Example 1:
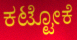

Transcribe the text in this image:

ಕಟ್ಟೋಕೆ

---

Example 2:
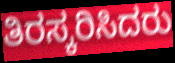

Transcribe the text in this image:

ತಿರಸ್ಕರಿಸಿದರು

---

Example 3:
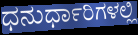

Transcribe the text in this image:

ಧನುರ್ಧಾರಿಗಳಲ್ಲಿ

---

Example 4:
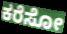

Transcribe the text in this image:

ಕರೆಸೋ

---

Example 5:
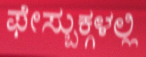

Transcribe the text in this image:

ಫೇಸ್ಬುಕ್ಗಳಲ್ಲಿ